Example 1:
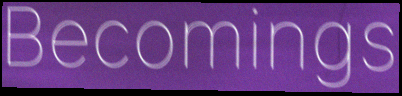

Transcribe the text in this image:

Becomings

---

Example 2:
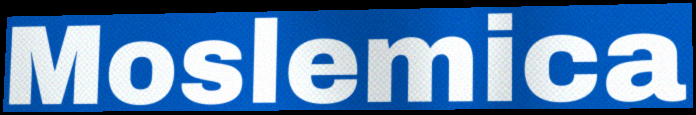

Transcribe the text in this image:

Moslemica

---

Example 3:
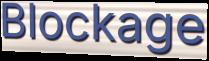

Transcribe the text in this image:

Blockage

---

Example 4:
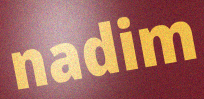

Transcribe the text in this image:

nadim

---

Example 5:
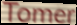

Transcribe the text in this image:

Tomer